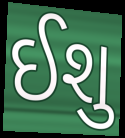
ઈશુ